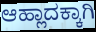
ಆಹ್ಲಾದಕ್ಕಾಗಿ